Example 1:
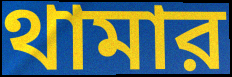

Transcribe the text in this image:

থামার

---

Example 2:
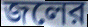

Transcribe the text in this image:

জলের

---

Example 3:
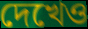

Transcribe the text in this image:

দেখেও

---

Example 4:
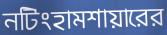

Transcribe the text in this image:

নটিংহামশায়ারের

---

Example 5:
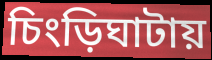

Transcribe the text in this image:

চিংড়িঘাটায়